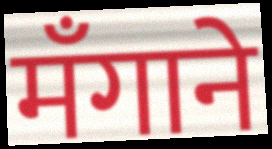
मँगाने